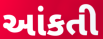
આંકતી